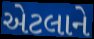
એટલાને